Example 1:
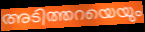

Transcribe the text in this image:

അടിത്തറയെയും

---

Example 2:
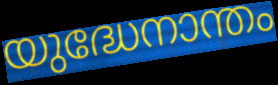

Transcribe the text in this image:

യുദ്ധേനാന്തം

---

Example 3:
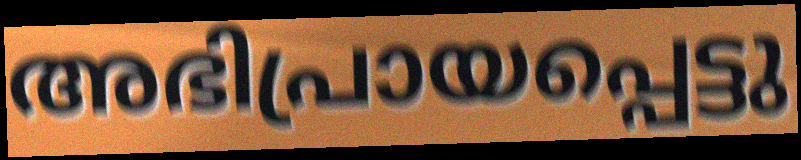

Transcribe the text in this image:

അഭിപ്രായപ്പെട്ടു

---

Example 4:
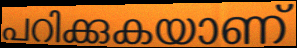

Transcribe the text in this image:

പറിക്കുകയാണ്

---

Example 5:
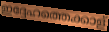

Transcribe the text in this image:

ഇദ്ദേഹത്തെക്കാള്